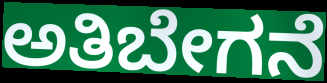
ಅತಿಬೇಗನೆ